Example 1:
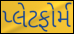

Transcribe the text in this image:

પ્લેટફોર્મ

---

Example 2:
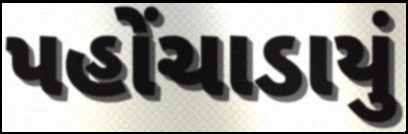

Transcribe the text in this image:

પહોંચાડાયું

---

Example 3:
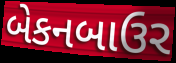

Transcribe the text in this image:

બેકનબાઉર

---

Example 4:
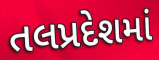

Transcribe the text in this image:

તલપ્રદેશમાં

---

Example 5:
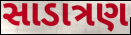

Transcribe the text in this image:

સાડાત્રણ